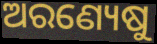
ଅରଣ୍ୟେଷୁ